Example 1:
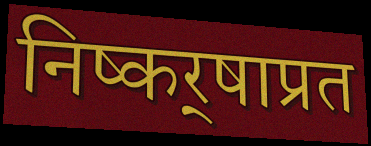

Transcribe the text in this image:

निष्कर्षाप्रत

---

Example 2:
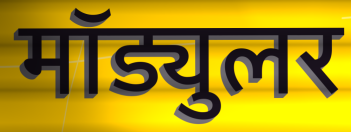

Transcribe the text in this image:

मॉड्युलर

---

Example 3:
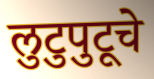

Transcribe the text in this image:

लुटुपुटूचे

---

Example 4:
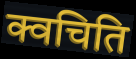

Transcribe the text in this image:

क्वचिति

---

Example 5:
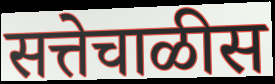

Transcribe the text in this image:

सत्तेचाळीस